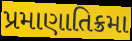
પ્રમાણાતિક્રમા